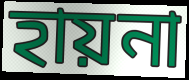
হায়না